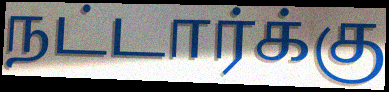
நட்டார்க்கு